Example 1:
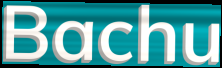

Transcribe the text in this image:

Bachu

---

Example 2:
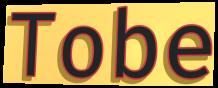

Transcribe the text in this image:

Tobe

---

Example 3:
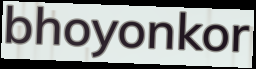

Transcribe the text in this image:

bhoyonkor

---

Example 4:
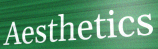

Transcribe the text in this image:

Aesthetics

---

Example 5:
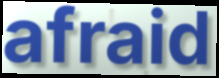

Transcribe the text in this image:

afraid